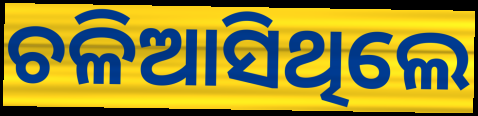
ଚଳିଆସିଥିଲେ